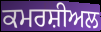
ਕਮਰਸ਼ੀਅਲ